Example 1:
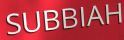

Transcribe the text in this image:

SUBBIAH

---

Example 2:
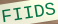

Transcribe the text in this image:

FIIDS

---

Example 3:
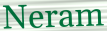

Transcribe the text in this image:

Neram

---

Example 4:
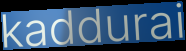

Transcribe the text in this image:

kaddurai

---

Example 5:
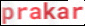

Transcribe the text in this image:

prakar